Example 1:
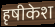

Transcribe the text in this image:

हृषीकेश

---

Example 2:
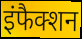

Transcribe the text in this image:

इंफैक्शन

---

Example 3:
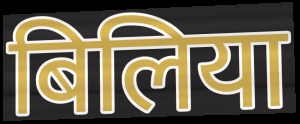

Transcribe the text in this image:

बिलिया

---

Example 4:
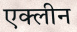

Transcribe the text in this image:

एक्लीन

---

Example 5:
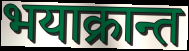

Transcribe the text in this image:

भयाक्रान्त